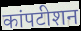
कांपटीशन